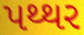
પથ્થર